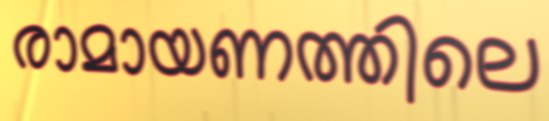
രാമായണത്തിലെ